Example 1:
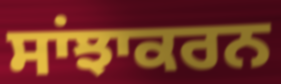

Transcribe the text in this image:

ਸਾਂਝਾਕਰਨ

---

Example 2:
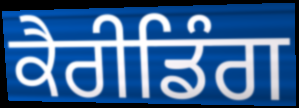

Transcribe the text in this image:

ਕੈਰੀਡਿੰਗ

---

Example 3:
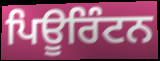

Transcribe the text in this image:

ਪਿਊਰਿੰਟਨ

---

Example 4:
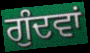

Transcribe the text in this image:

ਗੁੰਦਵਾਂ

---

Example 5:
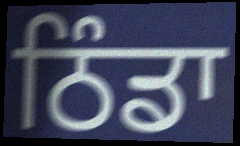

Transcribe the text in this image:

ਠਿੰਡਾ